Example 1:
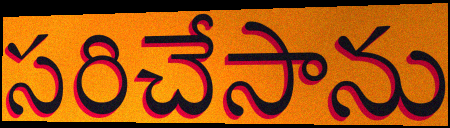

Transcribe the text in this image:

సరిచేసాను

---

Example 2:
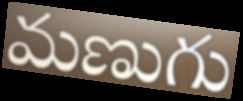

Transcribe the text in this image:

మణుగు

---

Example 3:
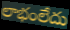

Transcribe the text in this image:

లాభంలేదు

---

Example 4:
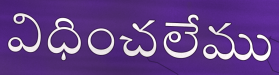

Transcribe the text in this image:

విధించలేము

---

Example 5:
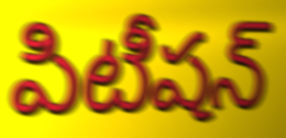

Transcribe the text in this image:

పిటీషన్